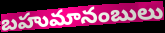
బహుమానంబులు